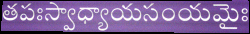
తపఃస్వాధ్యాయసంయమైః